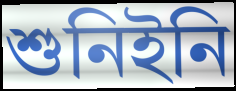
শুনিইনি